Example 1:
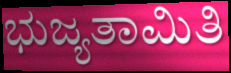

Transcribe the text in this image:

ಭುಜ್ಯತಾಮಿತಿ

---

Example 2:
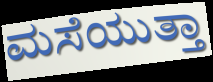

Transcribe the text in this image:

ಮಸೆಯುತ್ತಾ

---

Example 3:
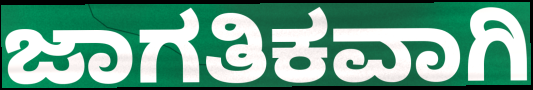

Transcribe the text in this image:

ಜಾಗತಿಕವಾಗಿ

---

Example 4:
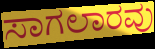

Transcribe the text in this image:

ಸಾಗಲಾರವು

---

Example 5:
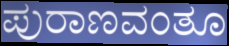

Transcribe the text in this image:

ಪುರಾಣವಂತೂ